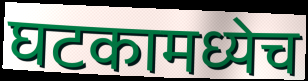
घटकामध्येच